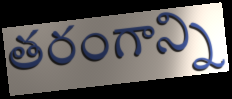
తరంగాన్ని